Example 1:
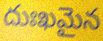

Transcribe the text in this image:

దుఃఖమైన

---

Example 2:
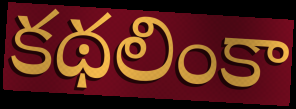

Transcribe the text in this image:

కథలింకా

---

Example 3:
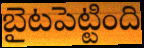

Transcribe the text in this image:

బైటపెట్టింది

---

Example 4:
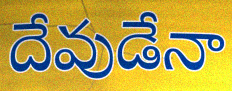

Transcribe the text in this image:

దేవుడేనా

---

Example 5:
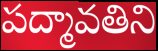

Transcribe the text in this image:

పద్మావతిని